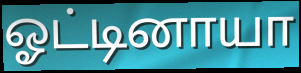
ஓட்டினாயா